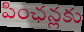
పింఛన్లకు